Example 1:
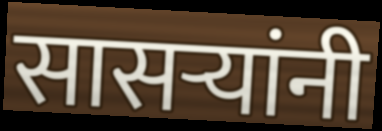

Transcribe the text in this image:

सासर्‍यांनी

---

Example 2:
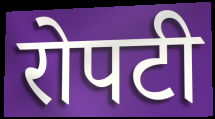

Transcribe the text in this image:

रोपटी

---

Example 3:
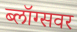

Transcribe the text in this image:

ब्लॉग्सवर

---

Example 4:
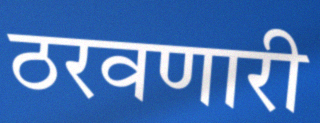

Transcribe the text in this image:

ठरवणारी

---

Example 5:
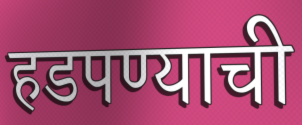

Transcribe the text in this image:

हडपण्याची